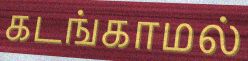
கடங்காமல்